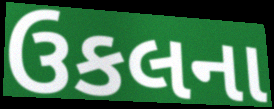
ઉકલના